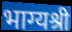
भाग्यश्री